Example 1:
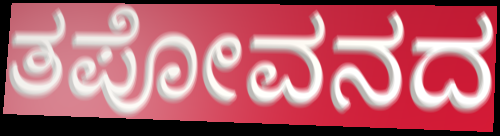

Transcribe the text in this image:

ತಪೋವನದ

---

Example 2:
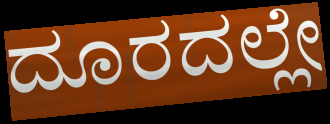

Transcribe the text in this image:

ದೂರದಲ್ಲೇ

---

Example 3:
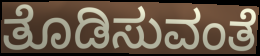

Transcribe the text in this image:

ತೊಡಿಸುವಂತೆ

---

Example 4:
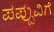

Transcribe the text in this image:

ಪಪ್ಪುವಿಗೆ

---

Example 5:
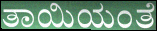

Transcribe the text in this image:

ತಾಯಿಯಂತೆ